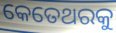
କେତେଥରକୁ